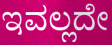
ಇವಲ್ಲದೇ